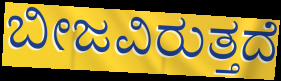
ಬೀಜವಿರುತ್ತದೆ